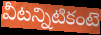
వీటన్నిటికంటె